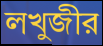
লখুজীর